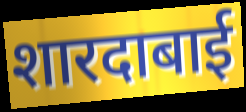
शारदाबाई